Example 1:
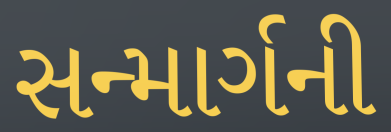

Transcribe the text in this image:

સન્માર્ગની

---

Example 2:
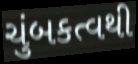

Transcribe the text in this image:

ચુંબકત્વથી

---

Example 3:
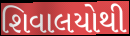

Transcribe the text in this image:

શિવાલયોથી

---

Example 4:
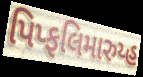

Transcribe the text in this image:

પિપ્ફલિમારુય્હ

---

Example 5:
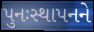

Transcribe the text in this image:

પુનઃસ્થાપનને